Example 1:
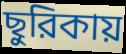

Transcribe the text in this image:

ছুরিকায়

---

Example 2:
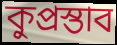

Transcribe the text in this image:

কুপ্রস্তাব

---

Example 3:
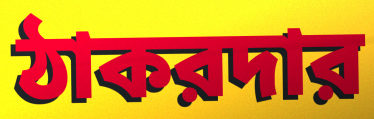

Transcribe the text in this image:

ঠাকরদার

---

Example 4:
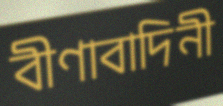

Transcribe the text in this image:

বীণাবাদিনী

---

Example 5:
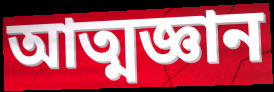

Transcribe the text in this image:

আত্মজ্ঞান